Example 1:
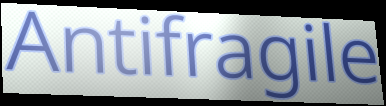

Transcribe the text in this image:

Antifragile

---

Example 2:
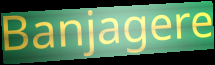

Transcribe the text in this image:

Banjagere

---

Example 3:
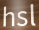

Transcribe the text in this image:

hsl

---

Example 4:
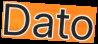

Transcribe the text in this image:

Dato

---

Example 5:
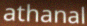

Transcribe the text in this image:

athanal